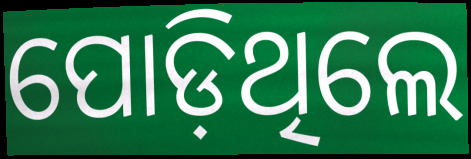
ପୋଡ଼ିଥିଲେ